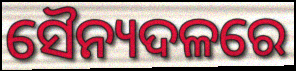
ସୈନ୍ୟଦଳରେ